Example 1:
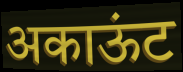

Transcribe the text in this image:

अकाऊंट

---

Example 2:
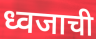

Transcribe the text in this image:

ध्वजाची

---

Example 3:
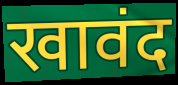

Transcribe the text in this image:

खावंद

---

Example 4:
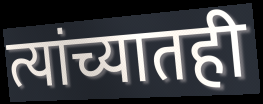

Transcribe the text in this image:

त्यांच्यातही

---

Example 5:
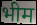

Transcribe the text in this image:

भीम